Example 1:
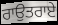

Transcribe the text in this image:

ਰਾਉਤਰਾਏ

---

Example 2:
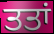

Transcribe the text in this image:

ਤਤਾਂ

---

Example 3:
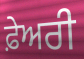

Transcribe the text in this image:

ਫ਼ੇਅਰੀ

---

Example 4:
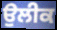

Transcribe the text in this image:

ਉਲੀਕ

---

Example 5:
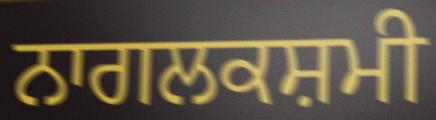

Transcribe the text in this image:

ਨਾਗਲਕਸ਼ਮੀ